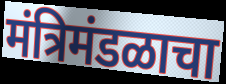
मंत्रिमंडळाचा